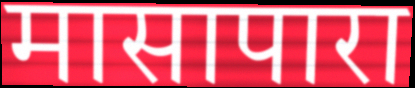
मासापारा